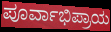
ಪೂರ್ವಾಭಿಪ್ರಾಯ